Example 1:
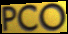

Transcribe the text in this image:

PCO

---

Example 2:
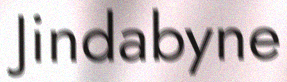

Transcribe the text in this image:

Jindabyne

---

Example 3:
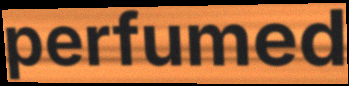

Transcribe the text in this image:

perfumed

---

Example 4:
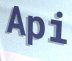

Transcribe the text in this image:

Api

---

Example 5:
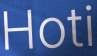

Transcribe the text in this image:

Hoti